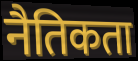
नैतिकता